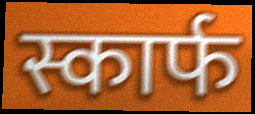
स्कार्फ